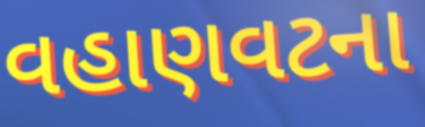
વહાણવટના